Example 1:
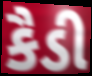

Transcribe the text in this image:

કૈડી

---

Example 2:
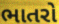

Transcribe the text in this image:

ભાતરો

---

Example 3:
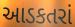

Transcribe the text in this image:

આડકતરાં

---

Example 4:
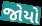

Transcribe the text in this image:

જોયો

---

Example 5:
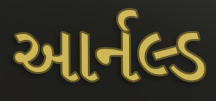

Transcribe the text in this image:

આર્નલ્ડ